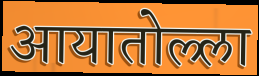
आयातोल्ला